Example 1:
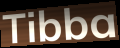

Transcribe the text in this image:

Tibba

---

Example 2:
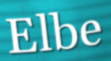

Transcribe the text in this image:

Elbe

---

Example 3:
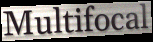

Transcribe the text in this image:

Multifocal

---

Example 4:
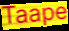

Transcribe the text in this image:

Taape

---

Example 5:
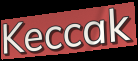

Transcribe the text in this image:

Keccak